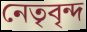
নেতৃবৃন্দ